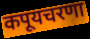
कपूयचरणा